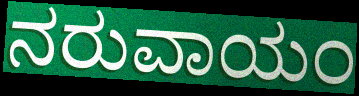
ನರುವಾಯಂ